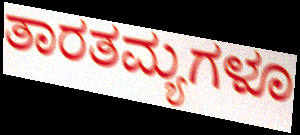
ತಾರತಮ್ಯಗಳೂ